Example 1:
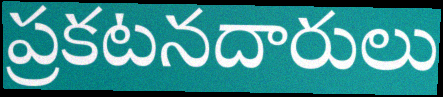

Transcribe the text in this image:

ప్రకటనదారులు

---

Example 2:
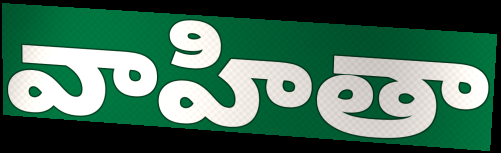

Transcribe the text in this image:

వాహితా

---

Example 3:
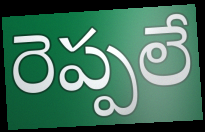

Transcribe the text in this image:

రెప్పలే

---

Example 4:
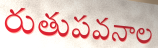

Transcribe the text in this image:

రుతుపవనాల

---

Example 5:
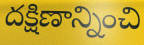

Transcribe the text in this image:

దక్షిణాన్నించి